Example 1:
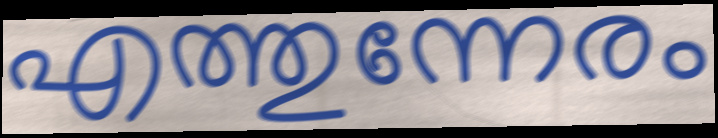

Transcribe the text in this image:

എത്തുന്നേരം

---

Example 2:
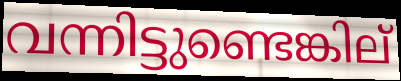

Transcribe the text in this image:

വന്നിട്ടുണ്ടെങ്കില്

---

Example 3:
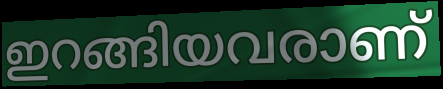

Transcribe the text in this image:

ഇറങ്ങിയവരാണ്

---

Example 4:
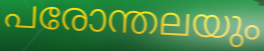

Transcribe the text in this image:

പരോന്തലയും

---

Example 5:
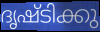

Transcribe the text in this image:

ദൃഷ്ടിക്കു